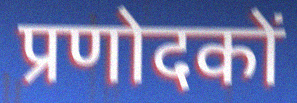
प्रणोदकों